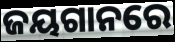
ଜୟଗାନରେ